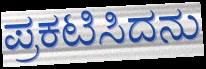
ಪ್ರಕಟಿಸಿದನು